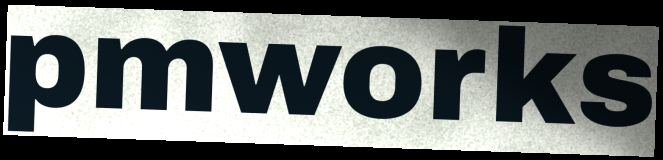
pmworks